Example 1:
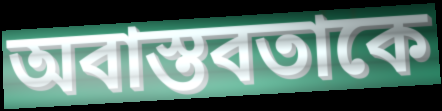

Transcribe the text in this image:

অবাস্তবতাকে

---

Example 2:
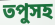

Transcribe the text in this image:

তপুসহ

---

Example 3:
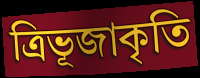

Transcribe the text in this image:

ত্রিভূজাকৃতি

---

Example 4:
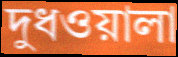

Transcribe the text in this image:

দুধওয়ালা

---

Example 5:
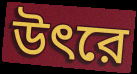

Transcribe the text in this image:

উৎরে